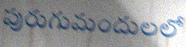
పురుగుమందులలో